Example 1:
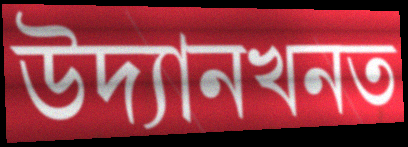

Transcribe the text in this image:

উদ্যানখনত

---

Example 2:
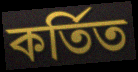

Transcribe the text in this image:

কৰ্তিত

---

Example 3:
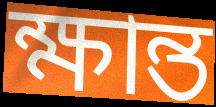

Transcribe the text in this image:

ক্ষান্ত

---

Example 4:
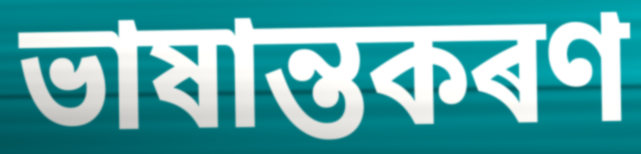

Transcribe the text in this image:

ভাষান্তকৰণ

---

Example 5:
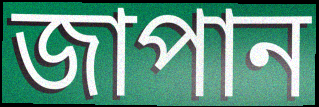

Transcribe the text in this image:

জাপান